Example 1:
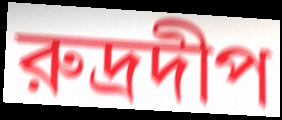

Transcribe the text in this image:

রুদ্রদীপ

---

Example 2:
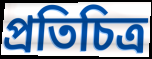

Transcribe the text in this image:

প্রতিচিত্র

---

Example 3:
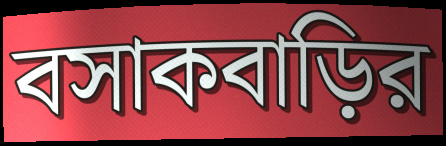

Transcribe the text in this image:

বসাকবাড়ির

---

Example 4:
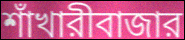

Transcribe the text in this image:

শাঁখারীবাজার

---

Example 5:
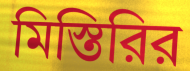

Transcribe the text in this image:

মিস্তিরির